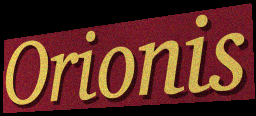
Orionis